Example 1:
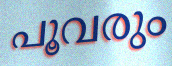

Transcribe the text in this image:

പൂവരും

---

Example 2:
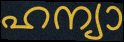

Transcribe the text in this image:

ഹന്യാ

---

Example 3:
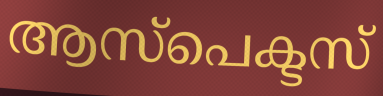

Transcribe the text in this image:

ആസ്പെക്ടസ്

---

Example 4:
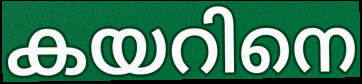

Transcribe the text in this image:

കയറിനെ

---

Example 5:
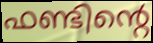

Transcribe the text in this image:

ഫണ്ടിന്റെ